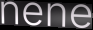
nene